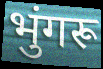
भुंगरू